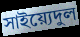
সাইয়্যেদুল